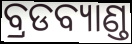
ବ୍ରଡବ୍ୟାଣ୍ଡ